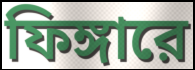
ফিঙ্গারে